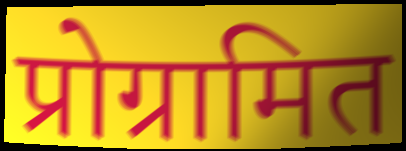
प्रोग्रामित